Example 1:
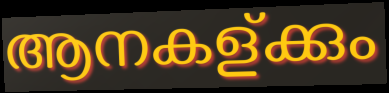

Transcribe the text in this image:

ആനകള്ക്കും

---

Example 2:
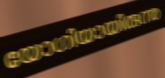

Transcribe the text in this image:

യോഗിയായിരുന്നു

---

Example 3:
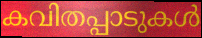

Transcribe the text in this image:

കവിതപ്പാടുകൾ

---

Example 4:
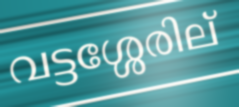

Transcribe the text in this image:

വട്ടശ്ശേരില്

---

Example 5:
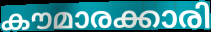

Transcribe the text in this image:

കൗമാരക്കാരി